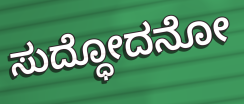
ಸುದ್ಧೋದನೋ